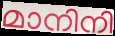
മാനിനി